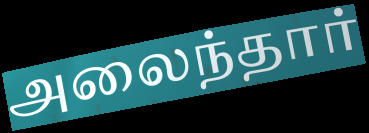
அலைந்தார்